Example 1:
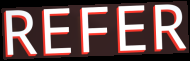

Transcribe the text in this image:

REFER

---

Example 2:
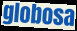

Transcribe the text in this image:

globosa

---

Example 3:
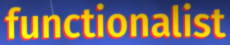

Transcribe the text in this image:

functionalist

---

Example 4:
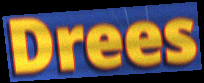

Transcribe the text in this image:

Drees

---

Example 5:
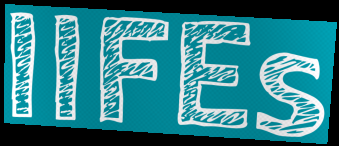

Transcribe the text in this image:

IIFEs